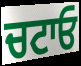
ਚਟਾਓ